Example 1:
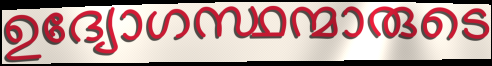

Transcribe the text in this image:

ഉദ്യോഗസ്ഥന്മാരുടെ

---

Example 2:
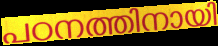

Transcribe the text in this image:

പഠനത്തിനായി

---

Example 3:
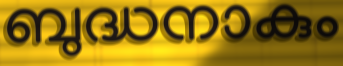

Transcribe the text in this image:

ബുദ്ധനാകും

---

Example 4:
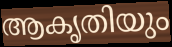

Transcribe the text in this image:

ആകൃതിയും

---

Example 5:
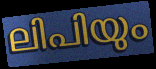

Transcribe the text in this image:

ലിപിയും